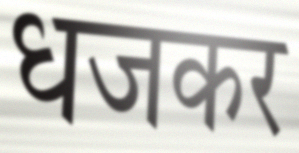
धजकर